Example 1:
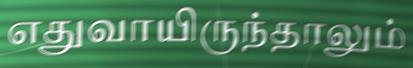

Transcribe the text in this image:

எதுவாயிருந்தாலும்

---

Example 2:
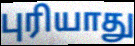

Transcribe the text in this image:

புரியாது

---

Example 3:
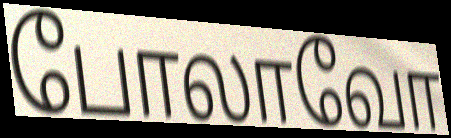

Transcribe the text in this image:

போலாவோ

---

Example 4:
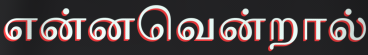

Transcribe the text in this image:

என்னவென்றால்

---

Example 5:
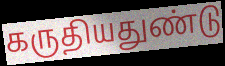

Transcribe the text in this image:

கருதியதுண்டு